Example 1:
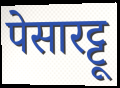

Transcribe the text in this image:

पेसारट्टू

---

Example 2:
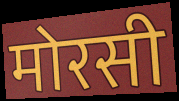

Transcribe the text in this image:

मोरसी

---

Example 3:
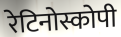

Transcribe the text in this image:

रेटिनोस्कोपी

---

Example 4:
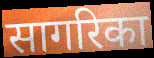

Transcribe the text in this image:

सागरिका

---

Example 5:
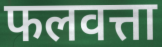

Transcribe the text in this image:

फलवत्ता